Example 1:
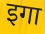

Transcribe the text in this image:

इगा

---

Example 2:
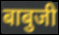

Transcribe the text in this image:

बाबुजी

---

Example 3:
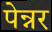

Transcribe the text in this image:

पेन्नर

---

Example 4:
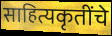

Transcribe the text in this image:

साहित्यकृतींचे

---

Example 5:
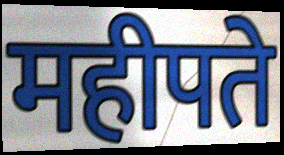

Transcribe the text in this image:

महीपते